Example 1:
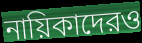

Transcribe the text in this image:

নায়িকাদেরও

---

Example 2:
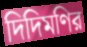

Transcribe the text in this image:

দিদিমণির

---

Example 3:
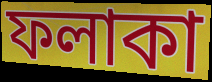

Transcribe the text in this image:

ফলাকা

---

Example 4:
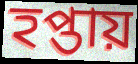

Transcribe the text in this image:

হপ্তায়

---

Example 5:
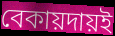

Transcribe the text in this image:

বেকায়দায়ই